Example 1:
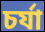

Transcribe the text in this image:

চর্যা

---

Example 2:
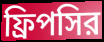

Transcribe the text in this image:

ফ্রিপসির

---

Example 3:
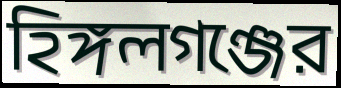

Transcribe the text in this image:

হিঙ্গলগঞ্জের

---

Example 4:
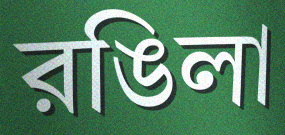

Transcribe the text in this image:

রঙিলা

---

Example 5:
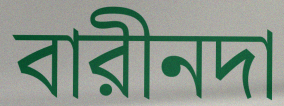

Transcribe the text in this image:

বারীনদা